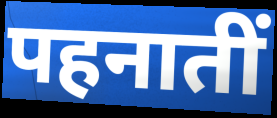
पहनातीं